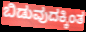
ಬಿಡುವುದಕ್ಕಿಂತ